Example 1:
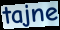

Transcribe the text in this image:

tajne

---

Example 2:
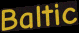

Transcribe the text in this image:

Baltic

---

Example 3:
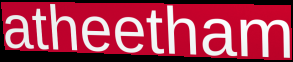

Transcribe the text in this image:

atheetham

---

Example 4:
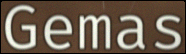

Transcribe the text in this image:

Gemas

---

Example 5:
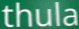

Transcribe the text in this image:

thula